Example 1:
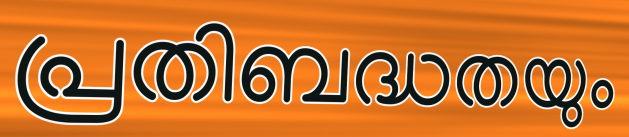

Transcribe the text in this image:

പ്രതിബദ്ധതയും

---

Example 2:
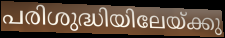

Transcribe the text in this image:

പരിശുദ്ധിയിലേയ്ക്കു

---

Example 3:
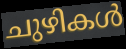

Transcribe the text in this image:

ചുഴികൾ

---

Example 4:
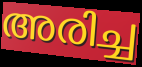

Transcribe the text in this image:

അരിച്ച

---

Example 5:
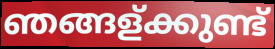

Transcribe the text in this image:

ഞങ്ങള്ക്കുണ്ട്